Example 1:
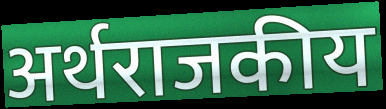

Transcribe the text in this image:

अर्थराजकीय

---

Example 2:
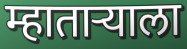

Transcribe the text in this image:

म्हाताऱ्याला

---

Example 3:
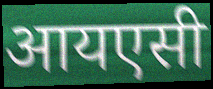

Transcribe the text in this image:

आयएसी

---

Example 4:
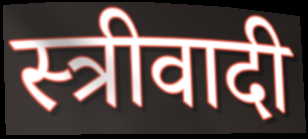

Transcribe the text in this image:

स्त्रीवादी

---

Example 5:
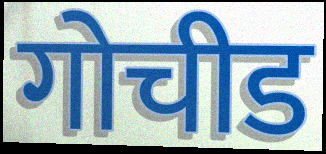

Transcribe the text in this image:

गोचीड